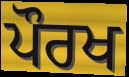
ਪੌਰਖ